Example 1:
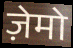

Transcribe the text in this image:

ज़ेमो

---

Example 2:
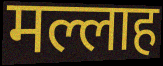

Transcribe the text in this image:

मल्लाह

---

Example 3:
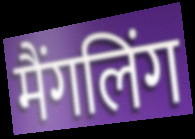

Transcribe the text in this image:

मैंगलिंग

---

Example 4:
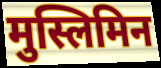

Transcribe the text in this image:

मुस्लिमिन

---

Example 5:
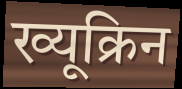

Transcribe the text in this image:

ख्यूक्रिन